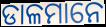
ଡାଳମାନେ